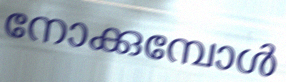
നോക്കുമ്പോൾ